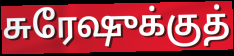
சுரேஷுக்குத்